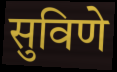
सुविणे